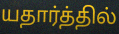
யதார்த்தில்